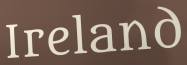
Ireland